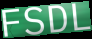
FSDL